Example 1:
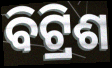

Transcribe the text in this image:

ବିଟ୍ରିଶ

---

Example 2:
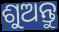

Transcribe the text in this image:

ଶୁଅନ୍ତୁ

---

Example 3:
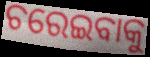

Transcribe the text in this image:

ଚରେଇବାକୁ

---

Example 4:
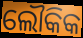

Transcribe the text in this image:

ଲୌକିକ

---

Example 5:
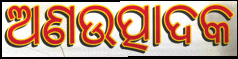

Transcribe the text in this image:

ଅଣଉତ୍ପାଦକ